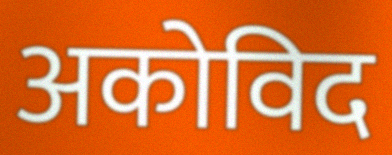
अकोविद